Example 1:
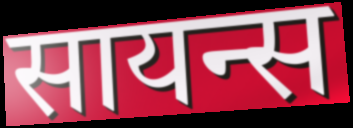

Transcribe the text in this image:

सायन्स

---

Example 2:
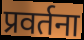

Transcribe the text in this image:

प्रवर्तना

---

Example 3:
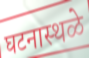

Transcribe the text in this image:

घटनास्थळे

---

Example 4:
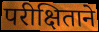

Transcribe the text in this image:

परीक्षिताने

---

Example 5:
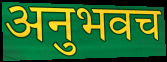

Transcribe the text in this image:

अनुभवच